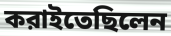
করাইতেছিলেন